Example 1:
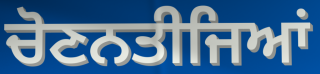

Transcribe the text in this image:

ਚੋਣਨਤੀਜਿਆਂ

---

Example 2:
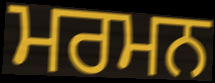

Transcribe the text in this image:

ਮਰਮਨ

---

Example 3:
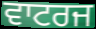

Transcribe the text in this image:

ਵਾਟਰਜ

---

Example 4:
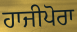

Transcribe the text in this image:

ਹਾਜੀਪੋਰਾ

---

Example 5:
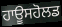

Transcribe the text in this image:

ਹਾਊਸਹੋਲਡ